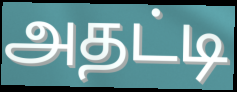
அதட்டி